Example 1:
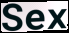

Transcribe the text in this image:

Sex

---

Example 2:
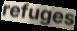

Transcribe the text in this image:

refuges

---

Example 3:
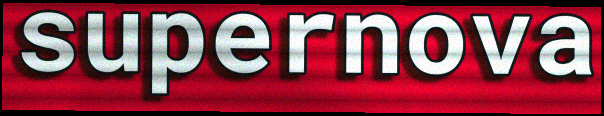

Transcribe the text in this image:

supernova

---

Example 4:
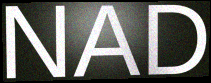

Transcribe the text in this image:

NAD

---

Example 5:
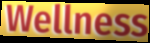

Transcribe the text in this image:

Wellness